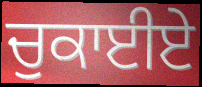
ਚੁਕਾਈਏ